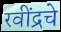
रवींद्रचे